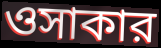
ওসাকার